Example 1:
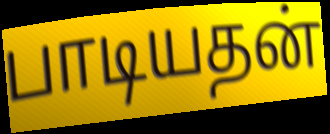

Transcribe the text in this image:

பாடியதன்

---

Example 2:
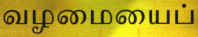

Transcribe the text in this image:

வழமையைப்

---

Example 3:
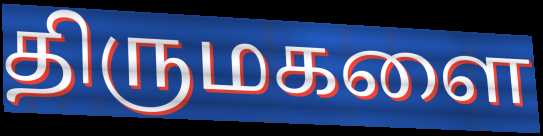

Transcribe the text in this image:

திருமகளை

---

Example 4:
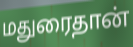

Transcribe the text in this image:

மதுரைதான்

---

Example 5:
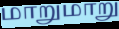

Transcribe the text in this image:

மாறுமாறு